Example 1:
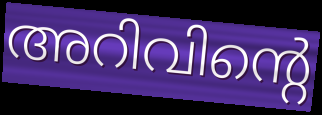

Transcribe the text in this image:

അറിവിന്റെ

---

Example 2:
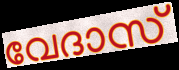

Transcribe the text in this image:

വേദാസ്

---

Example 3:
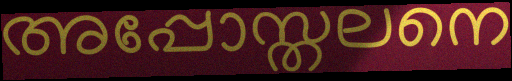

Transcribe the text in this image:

അപ്പോസ്തലനെ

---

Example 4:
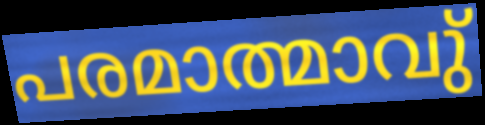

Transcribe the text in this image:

പരമാത്മാവു്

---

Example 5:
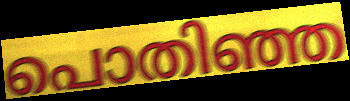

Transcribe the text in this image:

പൊതിഞ്ഞ